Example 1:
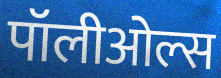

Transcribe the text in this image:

पॉलीओल्स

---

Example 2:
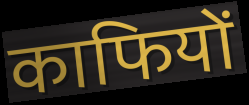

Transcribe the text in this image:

काफियों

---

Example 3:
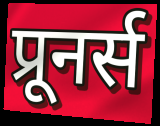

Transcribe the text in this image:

प्रूनर्स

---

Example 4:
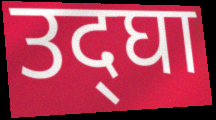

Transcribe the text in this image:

उद्घा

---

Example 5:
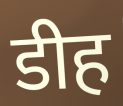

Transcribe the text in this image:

डीह